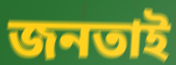
জনতাই